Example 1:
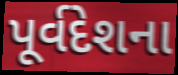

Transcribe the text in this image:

પૂર્વદેશના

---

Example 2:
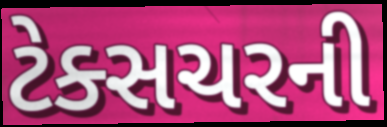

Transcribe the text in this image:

ટેક્સચરની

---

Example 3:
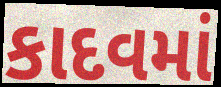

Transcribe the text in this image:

કાદવમાં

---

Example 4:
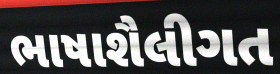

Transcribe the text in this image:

ભાષાશૈલીગત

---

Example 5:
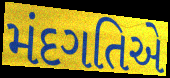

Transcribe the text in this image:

મંદગતિએ